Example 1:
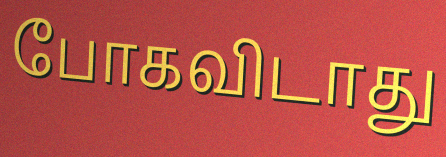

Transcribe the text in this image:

போகவிடாது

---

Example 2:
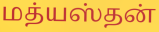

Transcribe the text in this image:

மத்யஸ்தன்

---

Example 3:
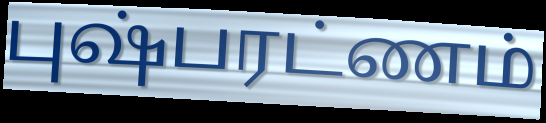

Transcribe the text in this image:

புஷ்பரட்ணம்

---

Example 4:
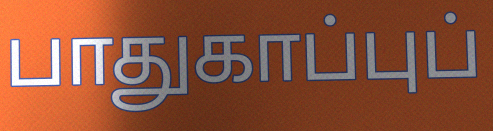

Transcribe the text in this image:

பாதுகாப்புப்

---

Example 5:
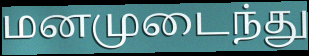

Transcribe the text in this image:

மனமுடைந்து